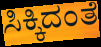
ಸಿಕ್ಕಿದಂತೆ